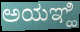
ಅಯಞ್ಹಿ